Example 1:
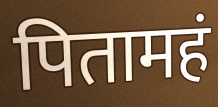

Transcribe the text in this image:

पितामहं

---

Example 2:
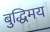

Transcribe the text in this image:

बुद्धिमय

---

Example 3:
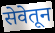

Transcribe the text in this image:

सेवेतून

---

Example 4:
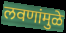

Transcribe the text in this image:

लवणांमुळे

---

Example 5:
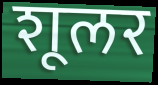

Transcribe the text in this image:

शूलर